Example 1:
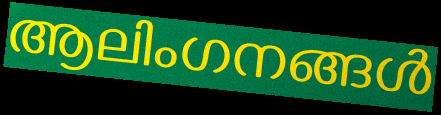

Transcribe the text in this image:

ആലിംഗനങ്ങൾ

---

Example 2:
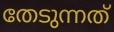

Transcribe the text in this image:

തേടുന്നത്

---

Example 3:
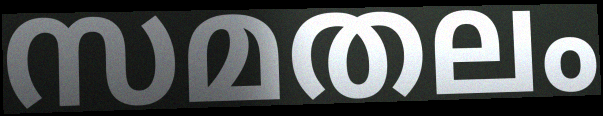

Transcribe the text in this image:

സമതലം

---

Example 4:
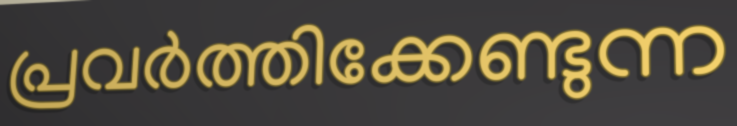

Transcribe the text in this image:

പ്രവർത്തിക്കേണ്ടുന്ന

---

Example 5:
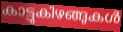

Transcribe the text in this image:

കാട്ടുകിഴങ്ങുകൾ